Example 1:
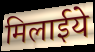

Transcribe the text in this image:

मिलाईये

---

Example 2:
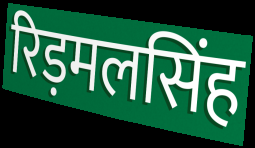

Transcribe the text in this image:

रिड़मलसिंह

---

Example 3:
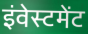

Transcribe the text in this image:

इंवेस्टमेंट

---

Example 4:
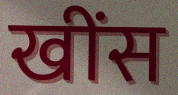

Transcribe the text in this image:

खींस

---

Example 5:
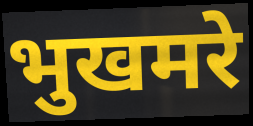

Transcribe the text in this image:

भुखमरे